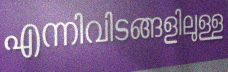
എന്നിവിടങ്ങളിലുള്ള